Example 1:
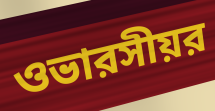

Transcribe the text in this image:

ওভারসীয়র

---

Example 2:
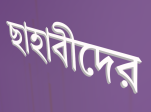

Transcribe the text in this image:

ছাহাবীদের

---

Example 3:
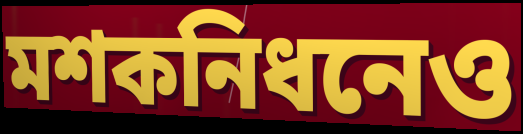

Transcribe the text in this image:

মশকনিধনেও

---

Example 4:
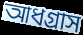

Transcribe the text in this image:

আধগ্রাস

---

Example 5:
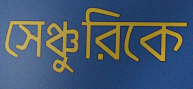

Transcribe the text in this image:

সেঞ্চুরিকে